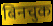
बिनचुक